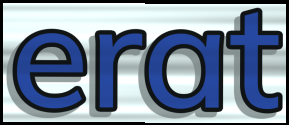
erat